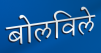
बोलविले